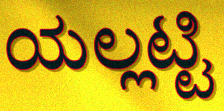
ಯಲ್ಲಟ್ಟಿ